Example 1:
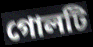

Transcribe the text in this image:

গোলটি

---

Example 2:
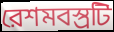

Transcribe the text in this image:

রেশমবস্ত্রটি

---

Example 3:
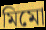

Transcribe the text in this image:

মিমো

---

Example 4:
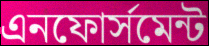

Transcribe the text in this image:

এনফোর্সমেন্ট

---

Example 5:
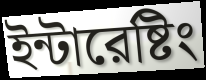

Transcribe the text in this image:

ইন্টারেষ্টিং